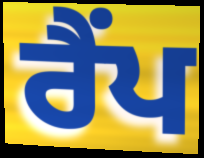
ਰੈਂਪ